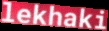
lekhaki